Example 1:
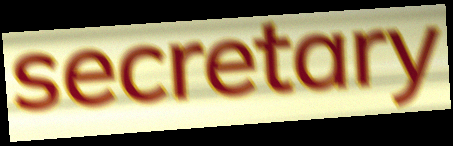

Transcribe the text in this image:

secretary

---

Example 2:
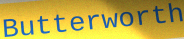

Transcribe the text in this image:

Butterworth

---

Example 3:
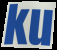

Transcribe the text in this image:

ku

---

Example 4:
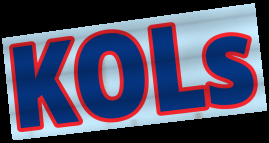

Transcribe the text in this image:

KOLs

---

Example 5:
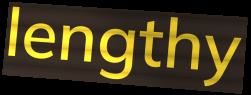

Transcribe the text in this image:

lengthy